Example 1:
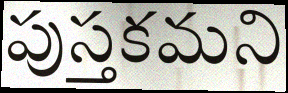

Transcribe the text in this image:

పుస్తకమని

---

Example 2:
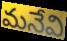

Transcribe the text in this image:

మనేవి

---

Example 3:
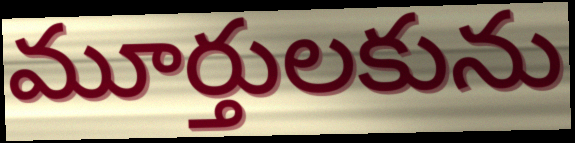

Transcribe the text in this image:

మూర్తులకును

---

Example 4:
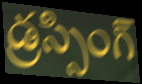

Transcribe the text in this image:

డ్రస్సింగ్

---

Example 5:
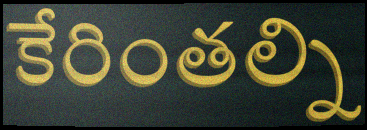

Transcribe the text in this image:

కేరింతల్ని